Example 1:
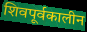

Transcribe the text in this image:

शिवपूर्वकालीन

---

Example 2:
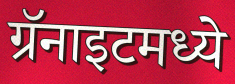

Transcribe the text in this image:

ग्रॅनाइटमध्ये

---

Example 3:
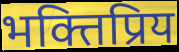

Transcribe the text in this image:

भक्तिप्रिय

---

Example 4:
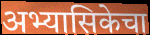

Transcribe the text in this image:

अभ्यासिकेचा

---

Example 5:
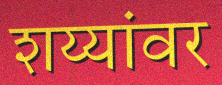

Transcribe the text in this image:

शय्यांवर